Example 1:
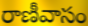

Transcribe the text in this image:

రాణీవాసం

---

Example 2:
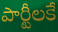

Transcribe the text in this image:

పార్టీలకే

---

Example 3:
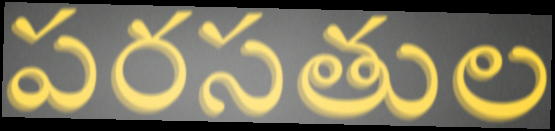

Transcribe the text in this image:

పరసతుల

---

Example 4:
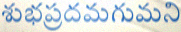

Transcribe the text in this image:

శుభప్రదమగుమని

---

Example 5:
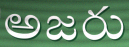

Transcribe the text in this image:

అజరు